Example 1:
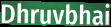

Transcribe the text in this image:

Dhruvbhai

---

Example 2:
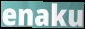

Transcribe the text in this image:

enaku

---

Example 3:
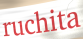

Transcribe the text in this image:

ruchita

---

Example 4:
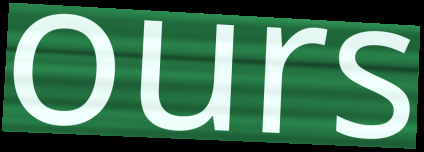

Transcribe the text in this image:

ours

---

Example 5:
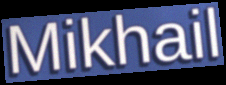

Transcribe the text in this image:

Mikhail